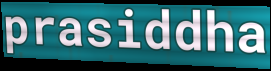
prasiddha